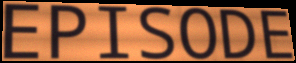
EPISODE